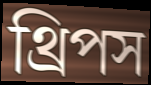
থ্রিপস